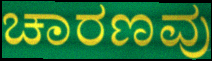
ಚಾರಣವು